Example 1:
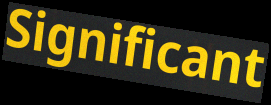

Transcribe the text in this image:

Significant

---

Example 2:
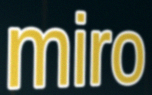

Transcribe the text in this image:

miro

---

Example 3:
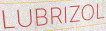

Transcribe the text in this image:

LUBRIZOL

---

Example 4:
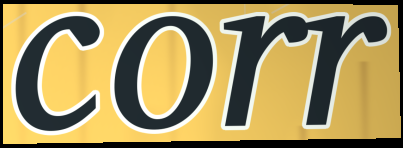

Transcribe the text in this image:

corr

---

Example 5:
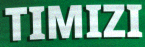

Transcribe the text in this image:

TIMIZI